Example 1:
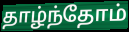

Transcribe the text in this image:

தாழ்ந்தோம்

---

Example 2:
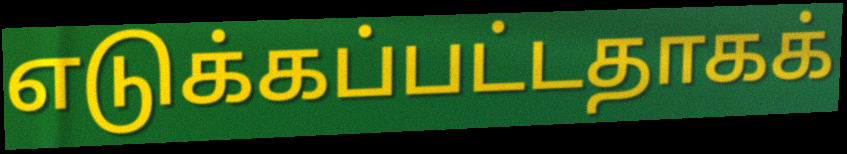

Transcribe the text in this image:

எடுக்கப்பட்டதாகக்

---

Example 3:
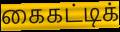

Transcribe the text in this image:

கைகட்டிக்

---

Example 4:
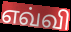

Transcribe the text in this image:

எவ்வி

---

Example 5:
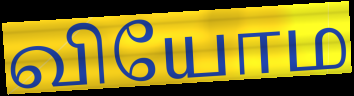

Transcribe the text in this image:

வியோம